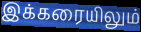
இக்கரையிலும்